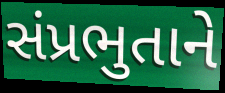
સંપ્રભુતાને